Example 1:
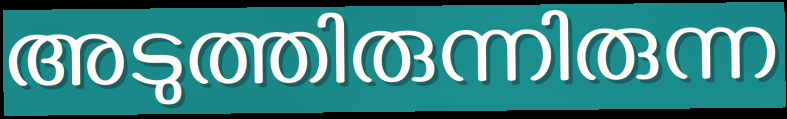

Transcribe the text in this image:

അടുത്തിരുന്നിരുന്ന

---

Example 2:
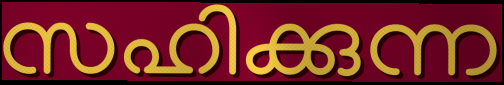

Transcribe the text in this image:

സഹിക്കുന്ന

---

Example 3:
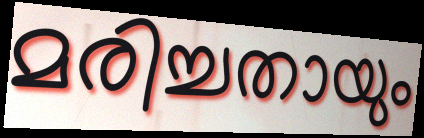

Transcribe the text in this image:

മരിച്ചതായും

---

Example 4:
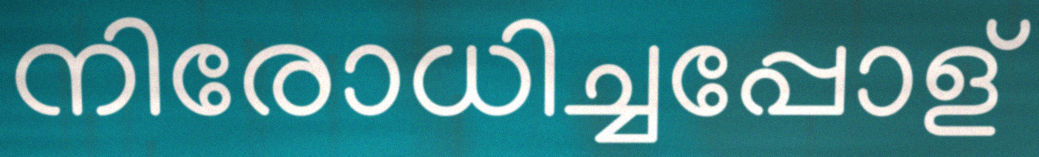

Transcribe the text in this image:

നിരോധിച്ചപ്പോള്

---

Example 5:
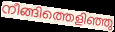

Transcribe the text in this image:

നീങ്ങിത്തെളിഞ്ഞു